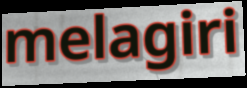
melagiri